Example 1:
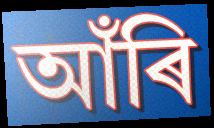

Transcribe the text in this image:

আঁৰি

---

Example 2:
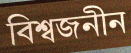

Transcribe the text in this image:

বিশ্বজনীন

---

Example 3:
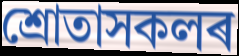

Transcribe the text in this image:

শ্ৰোতাসকলৰ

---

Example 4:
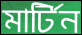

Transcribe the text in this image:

মাৰ্টিন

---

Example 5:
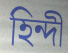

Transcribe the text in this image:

হিন্দী